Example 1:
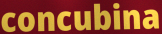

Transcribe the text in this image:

concubina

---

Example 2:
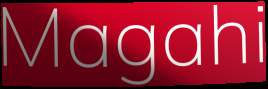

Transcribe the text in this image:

Magahi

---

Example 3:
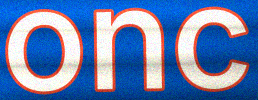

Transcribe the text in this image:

onc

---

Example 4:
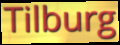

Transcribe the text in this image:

Tilburg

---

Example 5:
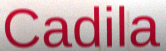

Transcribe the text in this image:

Cadila